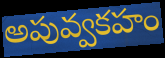
అపువ్వకహం